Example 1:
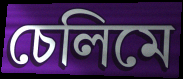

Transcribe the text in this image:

চেলিমে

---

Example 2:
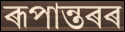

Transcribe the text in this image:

ৰূপান্তৰৰ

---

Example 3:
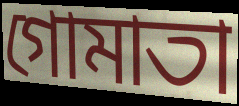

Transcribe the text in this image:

গোমাতা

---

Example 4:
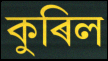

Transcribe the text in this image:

কুৰিল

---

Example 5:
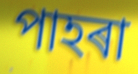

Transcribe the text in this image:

পাহৰা